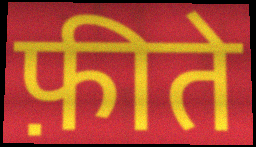
फ़ीते